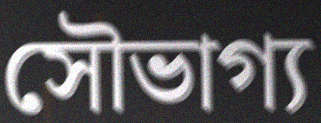
সৌভাগ্য